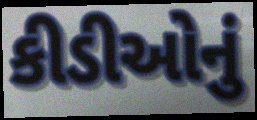
કીડીઓનું